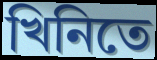
খিনিতে